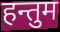
हन्तुम